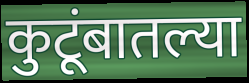
कुटूंबातल्या